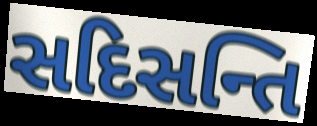
સદિસન્તિ